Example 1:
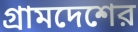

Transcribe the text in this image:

গ্রামদেশের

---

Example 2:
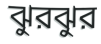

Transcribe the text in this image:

ঝুরঝুর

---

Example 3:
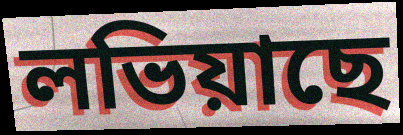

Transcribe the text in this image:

লভিয়াছে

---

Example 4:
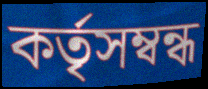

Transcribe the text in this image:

কর্তৃসম্বন্ধ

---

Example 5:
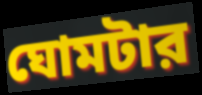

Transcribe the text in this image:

ঘোমটার